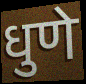
धुणे